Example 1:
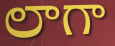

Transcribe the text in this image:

లాగా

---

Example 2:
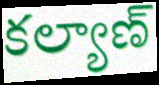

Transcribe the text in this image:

కల్యాణ్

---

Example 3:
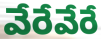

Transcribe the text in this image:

వేరేవేరే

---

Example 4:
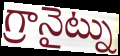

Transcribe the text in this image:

గ్రానైట్ను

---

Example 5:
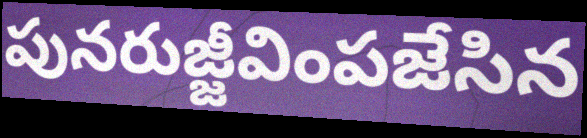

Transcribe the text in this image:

పునరుజ్జీవింపజేసిన